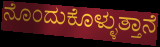
ನೊಂದುಕೊಳ್ಳುತ್ತಾನೆ